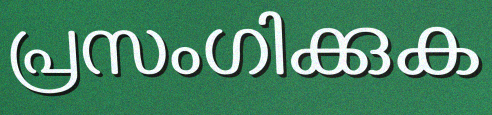
പ്രസംഗിക്കുക